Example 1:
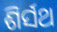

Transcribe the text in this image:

ଶିର୍ସଥ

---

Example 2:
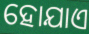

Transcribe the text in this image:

ହୋଯାଏ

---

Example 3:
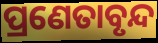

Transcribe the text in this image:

ପ୍ରଣେତାବୃନ୍ଦ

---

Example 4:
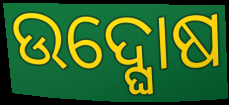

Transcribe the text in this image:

ଉଦ୍ଘୋଷ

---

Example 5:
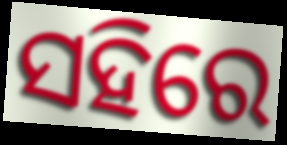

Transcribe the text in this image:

ସହିରେ